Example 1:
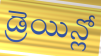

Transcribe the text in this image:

డ్రెయిన్లో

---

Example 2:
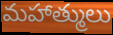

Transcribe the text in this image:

మహాత్ములు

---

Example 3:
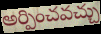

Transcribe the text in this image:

అర్పించవచ్చు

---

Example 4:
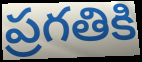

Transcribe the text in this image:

ప్రగతికి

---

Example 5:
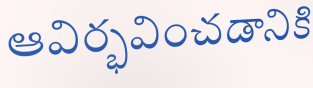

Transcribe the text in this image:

ఆవిర్భవించడానికి